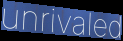
unrivaled